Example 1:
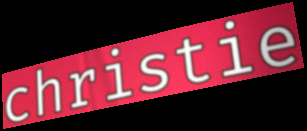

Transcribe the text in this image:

christie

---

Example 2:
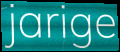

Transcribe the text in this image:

jarige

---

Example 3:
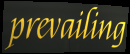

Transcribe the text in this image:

prevailing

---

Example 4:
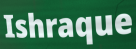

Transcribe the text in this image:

Ishraque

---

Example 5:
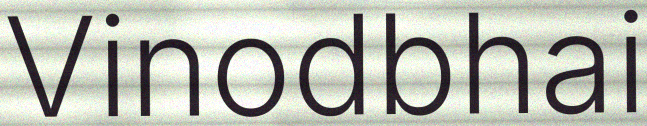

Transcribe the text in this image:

Vinodbhai